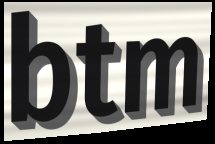
btm